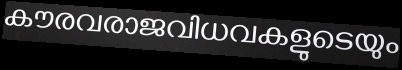
കൗരവരാജവിധവകളുടെയും